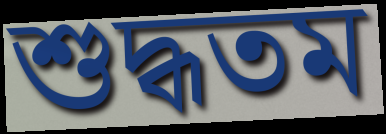
শুদ্ধতম